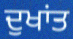
ਦੁਖਾਂਤ